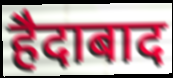
हैदाबाद